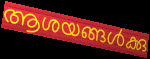
ആശയങ്ങൾക്കു